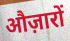
औज़ारों